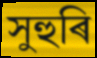
সুহুৰি